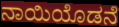
ನಾಯಿಯೊಡನೆ